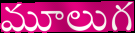
మూలుగ